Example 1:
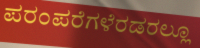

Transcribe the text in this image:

ಪರಂಪರೆಗಳೆರಡರಲ್ಲೂ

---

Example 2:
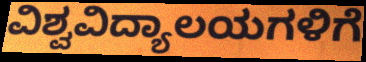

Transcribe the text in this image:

ವಿಶ್ವವಿದ್ಯಾಲಯಗಳಿಗೆ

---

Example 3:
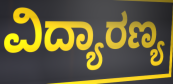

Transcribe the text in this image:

ವಿದ್ಯಾರಣ್ಯ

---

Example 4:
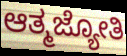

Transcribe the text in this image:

ಆತ್ಮಜ್ಯೋತಿ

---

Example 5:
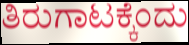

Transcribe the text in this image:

ತಿರುಗಾಟಕ್ಕೆಂದು